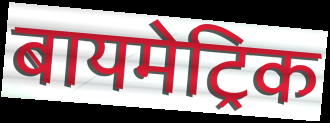
बायमेट्रिक